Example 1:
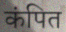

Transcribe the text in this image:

कंपित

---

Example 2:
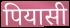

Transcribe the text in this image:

पियासी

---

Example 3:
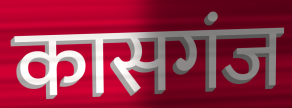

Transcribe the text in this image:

कासगंज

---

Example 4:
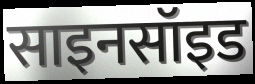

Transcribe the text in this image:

साइनसॉइड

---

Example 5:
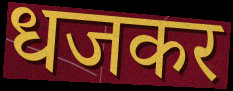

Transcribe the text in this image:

धजकर